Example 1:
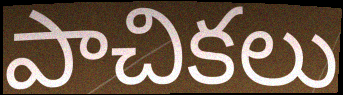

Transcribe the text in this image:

పాచికలు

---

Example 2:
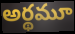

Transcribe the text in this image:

అర్థమూ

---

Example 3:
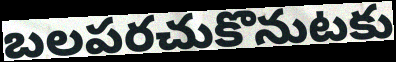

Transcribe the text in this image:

బలపరచుకొనుటకు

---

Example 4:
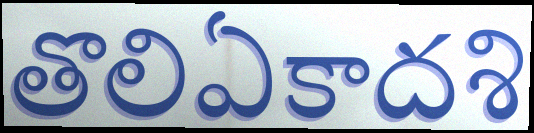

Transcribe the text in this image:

తొలిఏకాదశి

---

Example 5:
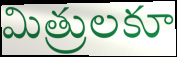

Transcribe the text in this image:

మిత్రులకూ